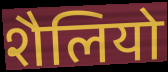
शैलियो